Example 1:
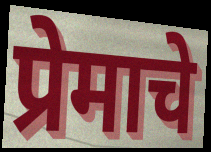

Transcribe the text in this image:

प्रेमाचे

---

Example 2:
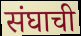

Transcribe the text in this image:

संघाची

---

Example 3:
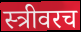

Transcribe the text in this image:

स्त्रीवरच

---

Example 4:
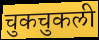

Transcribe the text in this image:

चुकचुकली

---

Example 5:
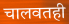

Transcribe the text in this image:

चालवतही